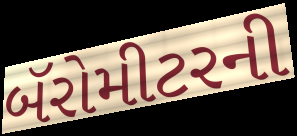
બૅરોમીટરની